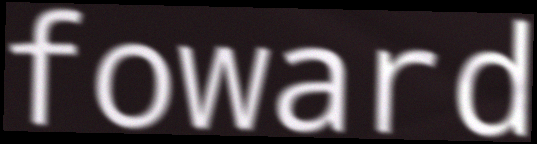
foward